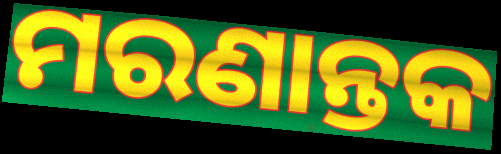
ମରଣାନ୍ତକ